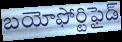
బయోఫోర్టిఫైడ్